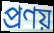
প্ৰণয়